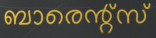
ബാരെന്റ്സ്